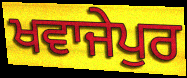
ਖਵਾਜੇਪੁਰ